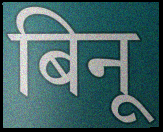
बिनू